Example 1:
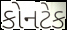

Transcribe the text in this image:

કોનટેક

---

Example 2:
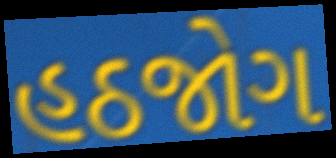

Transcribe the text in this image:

હઠજોગ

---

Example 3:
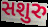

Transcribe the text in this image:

સશુરુ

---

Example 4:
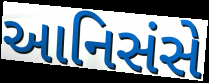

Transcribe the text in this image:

આનિસંસે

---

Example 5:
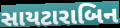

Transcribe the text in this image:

સાયટારાબિન